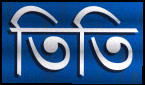
তিতি